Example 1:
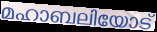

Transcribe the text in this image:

മഹാബലിയോട്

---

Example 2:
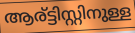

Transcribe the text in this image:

ആര്ട്ടിസ്റ്റിനുള്ള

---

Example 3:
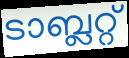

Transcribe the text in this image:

ടാബ്ലറ്റ്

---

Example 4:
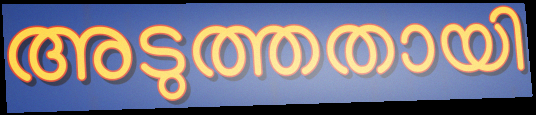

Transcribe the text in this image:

അടുത്തതായി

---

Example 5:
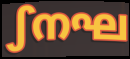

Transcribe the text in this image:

ഽനഘ